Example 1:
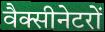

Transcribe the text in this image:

वैक्सीनेटरों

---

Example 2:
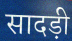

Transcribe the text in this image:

सादड़ी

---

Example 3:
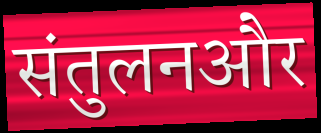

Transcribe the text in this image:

संतुलनऔर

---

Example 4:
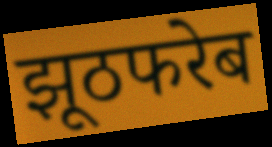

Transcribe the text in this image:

झूठफरेब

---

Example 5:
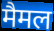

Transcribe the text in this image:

मैमल